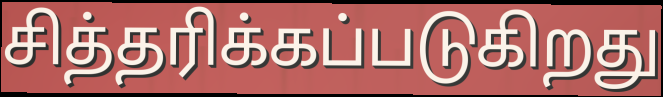
சித்தரிக்கப்படுகிறது